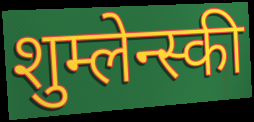
शुम्लेन्स्की